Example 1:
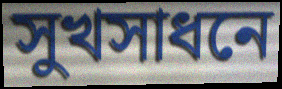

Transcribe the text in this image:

সুখসাধনে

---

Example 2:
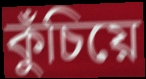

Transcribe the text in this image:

কুঁচিয়ে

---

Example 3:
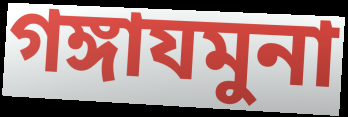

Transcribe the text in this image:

গঙ্গাযমুনা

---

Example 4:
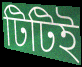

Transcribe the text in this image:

টিটিই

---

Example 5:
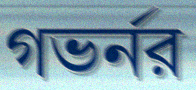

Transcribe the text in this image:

গভর্নর